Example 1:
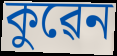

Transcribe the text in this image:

কুৱেন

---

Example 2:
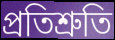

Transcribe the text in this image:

প্ৰতিশ্ৰুতি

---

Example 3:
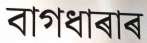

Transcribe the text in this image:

বাগধাৰাৰ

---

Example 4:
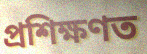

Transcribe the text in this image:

প্ৰশিক্ষণত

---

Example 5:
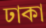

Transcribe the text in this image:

ঢাকা